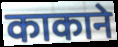
काकाने